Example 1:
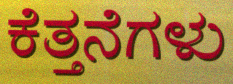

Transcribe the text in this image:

ಕೆತ್ತನೆಗಳು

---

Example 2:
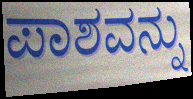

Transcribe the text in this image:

ಪಾಶವನ್ನು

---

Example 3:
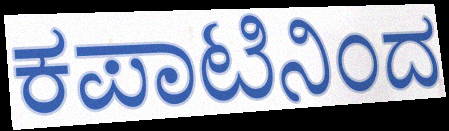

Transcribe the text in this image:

ಕಪಾಟಿನಿಂದ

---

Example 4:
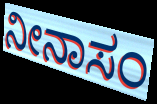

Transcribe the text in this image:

ನೀನಾಸಂ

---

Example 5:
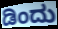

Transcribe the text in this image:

ಡಿಂದು